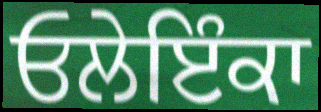
ਓਲੇਇੰਕਾ